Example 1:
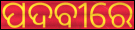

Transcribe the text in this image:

ପଦବୀରେ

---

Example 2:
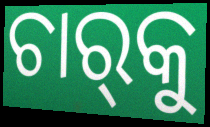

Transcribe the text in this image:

ଚାର୍‌କୁ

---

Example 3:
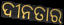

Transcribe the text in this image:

ଦୀନତାର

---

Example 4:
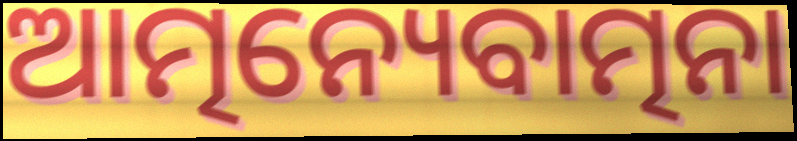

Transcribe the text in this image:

ଆତ୍ମନ୍ୟେବାତ୍ମନା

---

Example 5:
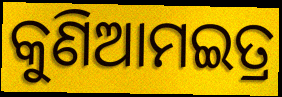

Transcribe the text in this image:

କୁଣିଆମଇତ୍ର